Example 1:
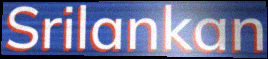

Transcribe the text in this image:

Srilankan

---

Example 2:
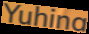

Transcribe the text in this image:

Yuhina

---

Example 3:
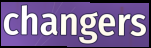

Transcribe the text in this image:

changers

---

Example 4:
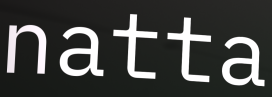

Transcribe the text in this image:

natta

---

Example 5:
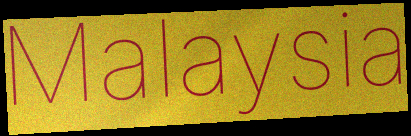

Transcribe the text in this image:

Malaysia